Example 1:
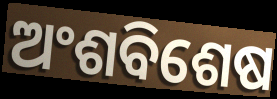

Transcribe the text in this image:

ଅଂଶବିଶେଷ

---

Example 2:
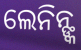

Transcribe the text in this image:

ଲେନିନ୍ଙ୍କ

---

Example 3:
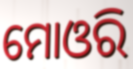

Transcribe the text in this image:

ମୋଓରି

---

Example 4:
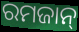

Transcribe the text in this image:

ରମଜାନ୍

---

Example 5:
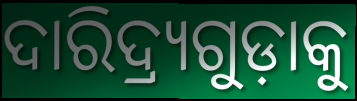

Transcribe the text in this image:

ଦାରିଦ୍ର୍ୟଗୁଡ଼ାକୁ